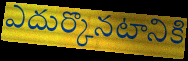
ఎదుర్కొనటానికి